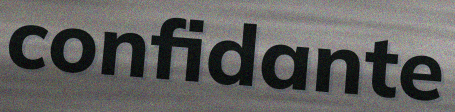
confidante